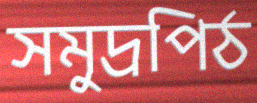
সমুদ্রপিঠ